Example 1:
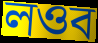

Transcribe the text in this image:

লওব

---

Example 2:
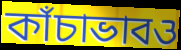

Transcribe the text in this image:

কাঁচাভাবও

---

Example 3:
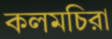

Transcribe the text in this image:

কলমচিরা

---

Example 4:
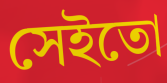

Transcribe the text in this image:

সেইতো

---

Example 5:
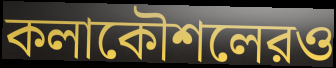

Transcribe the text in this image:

কলাকৌশলেরও